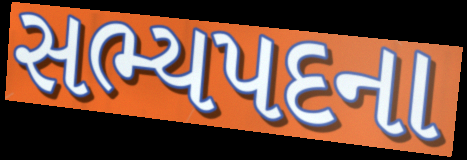
સભ્યપદના